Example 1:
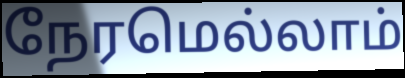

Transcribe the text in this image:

நேரமெல்லாம்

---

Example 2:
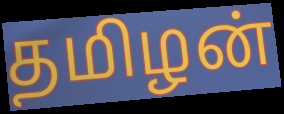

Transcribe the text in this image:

தமிழன்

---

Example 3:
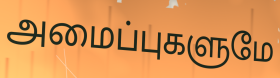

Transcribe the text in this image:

அமைப்புகளுமே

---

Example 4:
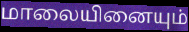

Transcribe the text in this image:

மாலையினையும்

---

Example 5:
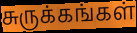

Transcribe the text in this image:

சுருக்கங்கள்